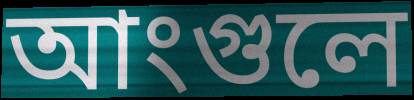
আংগুলে